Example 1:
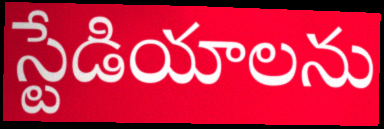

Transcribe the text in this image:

స్టేడియాలను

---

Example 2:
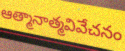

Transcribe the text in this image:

ఆత్మానాత్మవివేచనం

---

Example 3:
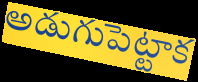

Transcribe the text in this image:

అడుగుపెట్టాక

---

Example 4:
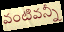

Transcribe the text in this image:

వంటివన్నీ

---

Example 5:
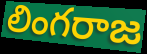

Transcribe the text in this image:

లింగరాజ